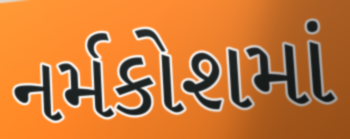
નર્મકોશમાં